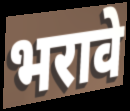
भरावे